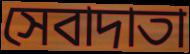
সেবাদাতা